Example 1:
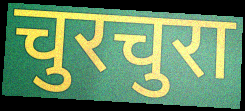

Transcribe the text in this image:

चुरचुरा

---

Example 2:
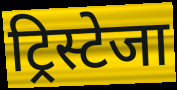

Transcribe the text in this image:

ट्रिस्टेजा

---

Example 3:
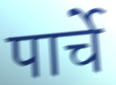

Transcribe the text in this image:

पार्चे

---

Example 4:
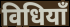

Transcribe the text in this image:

विधियाँ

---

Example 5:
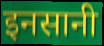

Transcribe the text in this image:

इनसानी